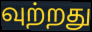
வுற்றது